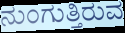
ನುಂಗುತ್ತಿರುವ